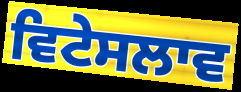
ਵਿਟੇਸਲਾਵ